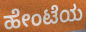
ಹೇಂಟೆಯ